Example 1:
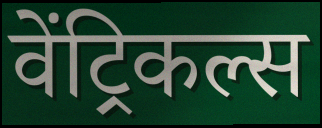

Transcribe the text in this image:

वेंट्रिकल्स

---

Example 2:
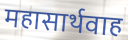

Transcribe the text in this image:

महासार्थवाह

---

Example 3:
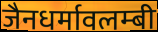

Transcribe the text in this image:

जैनधर्मावलम्बी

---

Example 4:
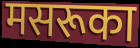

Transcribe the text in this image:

मसरूका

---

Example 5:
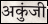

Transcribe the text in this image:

अकुंजी